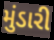
મુંડારી